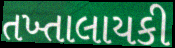
તખ્તાલાયકી